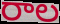
రాల